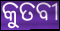
କୁତବୀ